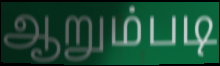
ஆறும்படி